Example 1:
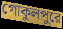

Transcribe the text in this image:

গোকুলপুরে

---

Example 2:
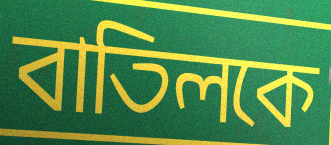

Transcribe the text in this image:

বাতিলকে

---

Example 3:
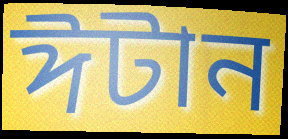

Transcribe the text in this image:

ঈটান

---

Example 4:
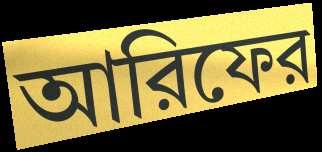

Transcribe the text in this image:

আরিফের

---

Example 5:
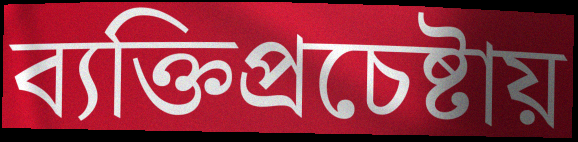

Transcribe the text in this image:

ব্যক্তিপ্রচেষ্টায়